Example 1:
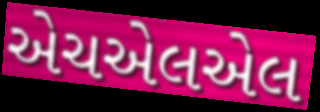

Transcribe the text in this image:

એચએલએલ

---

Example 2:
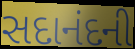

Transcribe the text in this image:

સદાનંદની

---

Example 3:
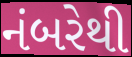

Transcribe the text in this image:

નંબરેથી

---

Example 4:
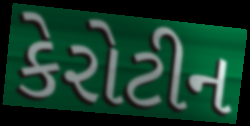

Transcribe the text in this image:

કેરોટીન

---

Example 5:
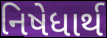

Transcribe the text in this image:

નિષેધાર્થ